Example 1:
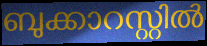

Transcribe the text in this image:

ബുക്കാറസ്റ്റിൽ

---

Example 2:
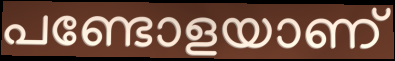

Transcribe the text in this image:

പണ്ടോളയാണ്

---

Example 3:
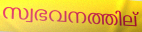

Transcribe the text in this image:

സ്വഭവനത്തില്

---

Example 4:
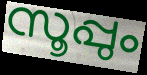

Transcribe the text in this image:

സൂപ്പും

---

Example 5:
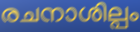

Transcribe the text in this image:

രചനാശില്പം